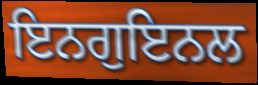
ਇਨਗੁਇਨਲ